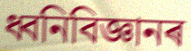
ধ্বনিবিজ্ঞানৰ